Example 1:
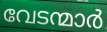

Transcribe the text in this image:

വേടന്മാർ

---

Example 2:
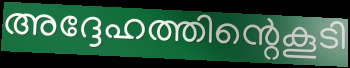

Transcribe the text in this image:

അദ്ദേഹത്തിന്റെകൂടി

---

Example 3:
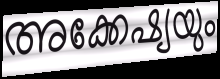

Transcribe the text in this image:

അക്കേഷ്യയും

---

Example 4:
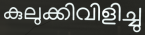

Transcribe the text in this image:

കുലുക്കിവിളിച്ചു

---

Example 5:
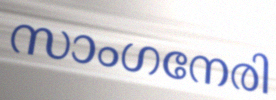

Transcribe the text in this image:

സാംഗനേരി